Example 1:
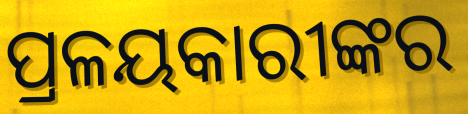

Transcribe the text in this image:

ପ୍ରଳୟକାରୀଙ୍କର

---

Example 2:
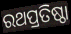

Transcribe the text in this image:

ରଥପ୍ରତିଷ୍ଠା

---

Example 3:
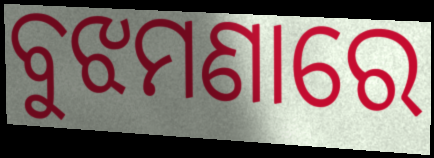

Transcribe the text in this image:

ବୁଝମଣାରେ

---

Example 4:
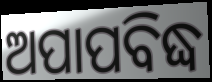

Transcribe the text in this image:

ଅପାପବିଦ୍ଧ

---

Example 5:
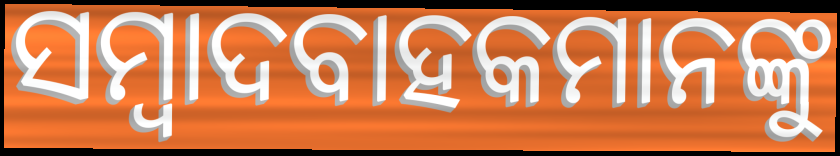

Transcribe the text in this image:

ସମ୍ବାଦବାହକମାନଙ୍କୁ